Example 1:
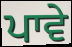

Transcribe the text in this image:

ਪਾਵੇ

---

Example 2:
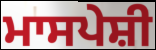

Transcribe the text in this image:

ਮਾਸਪੇਸ਼ੀ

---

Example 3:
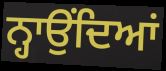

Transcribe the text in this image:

ਨ੍ਹਾਉਂਦਿਆਂ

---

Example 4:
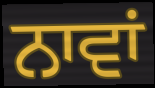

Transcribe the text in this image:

ਨਾਵਾਂ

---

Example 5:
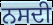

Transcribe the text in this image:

ਨਸਦੀ